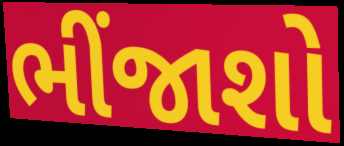
ભીંજાશો